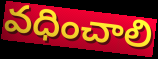
వధించాలి